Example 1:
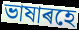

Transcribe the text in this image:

ভাষাৰহে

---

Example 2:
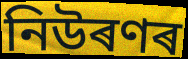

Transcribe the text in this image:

নিউৰণৰ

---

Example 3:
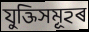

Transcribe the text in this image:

যুক্তিসমূহৰ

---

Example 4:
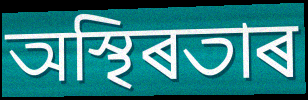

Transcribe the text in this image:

অস্থিৰতাৰ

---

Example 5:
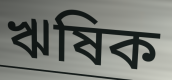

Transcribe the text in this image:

ঋষিক